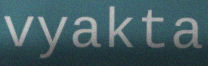
vyakta